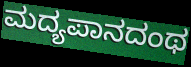
ಮದ್ಯಪಾನದಂಥ